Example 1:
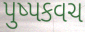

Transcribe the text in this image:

પુષ્પકવચ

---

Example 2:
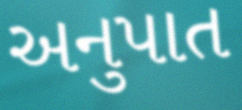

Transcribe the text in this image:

અનુપાત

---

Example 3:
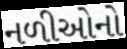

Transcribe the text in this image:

નળીઓનો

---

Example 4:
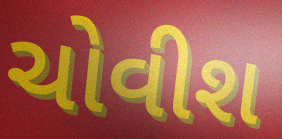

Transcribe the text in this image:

ચોવીશ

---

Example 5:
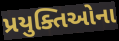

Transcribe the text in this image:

પ્રયુક્તિઓના